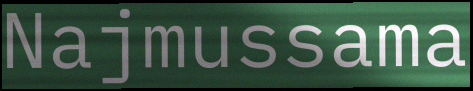
Najmussama